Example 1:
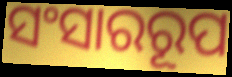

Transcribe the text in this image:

ସଂସାରରୂପ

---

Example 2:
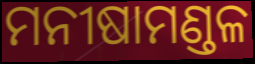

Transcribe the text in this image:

ମନୀଷାମଣ୍ଡଳ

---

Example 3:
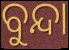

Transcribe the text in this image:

ବୁନ୍ଦା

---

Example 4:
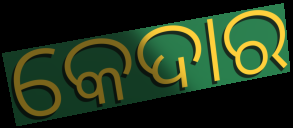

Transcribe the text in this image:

କେଦାର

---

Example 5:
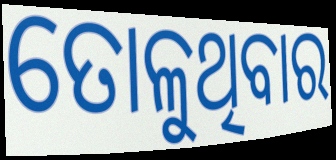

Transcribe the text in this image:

ତୋଳୁଥିବାର